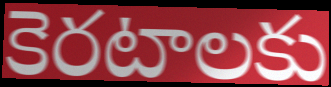
కెరటాలకు